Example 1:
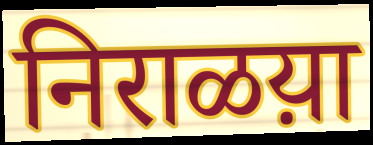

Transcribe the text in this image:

निराळय़ा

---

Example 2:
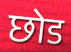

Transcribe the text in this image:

छोड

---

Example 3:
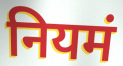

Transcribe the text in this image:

नियमं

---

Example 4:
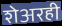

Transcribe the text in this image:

शेअरही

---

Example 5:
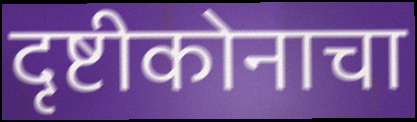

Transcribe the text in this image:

दृष्टीकोनाचा